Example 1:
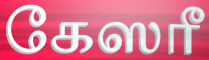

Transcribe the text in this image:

கேஸரீ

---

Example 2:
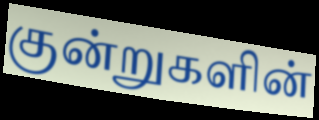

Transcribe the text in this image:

குன்றுகளின்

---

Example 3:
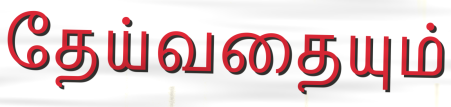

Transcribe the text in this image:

தேய்வதையும்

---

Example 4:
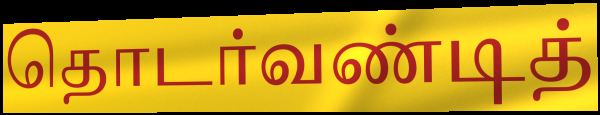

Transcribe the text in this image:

தொடர்வண்டித்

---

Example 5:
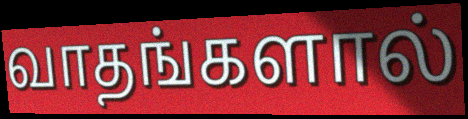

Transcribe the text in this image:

வாதங்களால்